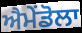
ਐਮੇਂਡੋਲਾ